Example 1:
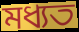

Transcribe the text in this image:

মধ্যত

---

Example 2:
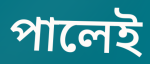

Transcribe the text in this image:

পালেই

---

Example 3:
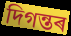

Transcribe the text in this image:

দিগন্তৰ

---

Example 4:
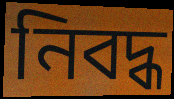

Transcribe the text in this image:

নিবদ্ধ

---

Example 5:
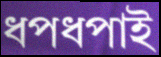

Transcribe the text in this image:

ধপধপাই